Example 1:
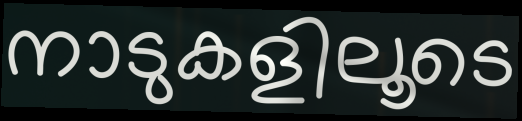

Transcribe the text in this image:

നാടുകളിലൂടെ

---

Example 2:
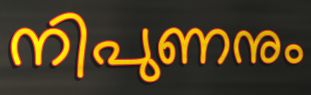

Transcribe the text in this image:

നിപുണനും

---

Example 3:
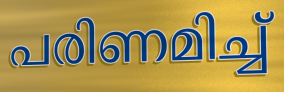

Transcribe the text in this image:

പരിണമിച്ച്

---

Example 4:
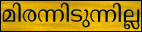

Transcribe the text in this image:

മിരന്നിടുന്നില്ല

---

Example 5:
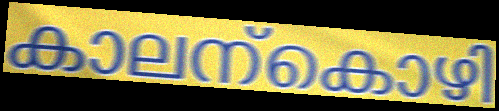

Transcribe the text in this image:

കാലന്കൊഴി